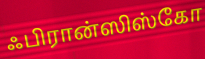
ஃபிரான்ஸிஸ்கோ